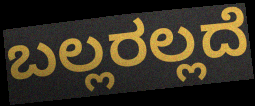
ಬಲ್ಲರಲ್ಲದೆ